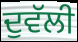
ਦੁਵੱਲੀ